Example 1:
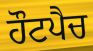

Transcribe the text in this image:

ਹੌਟਪੈਚ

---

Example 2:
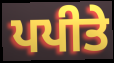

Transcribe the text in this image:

ਪਪੀਤੇ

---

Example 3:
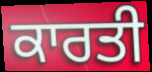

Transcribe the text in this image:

ਕਾਰਤੀ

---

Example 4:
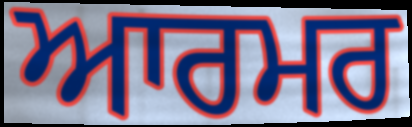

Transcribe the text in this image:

ਆਰਮਰ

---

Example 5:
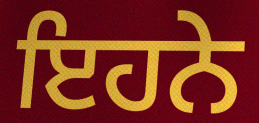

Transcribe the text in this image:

ਇਹਨੇ